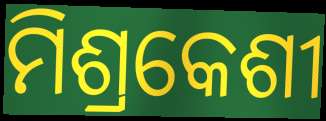
ମିଶ୍ରକେଶୀ